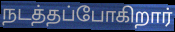
நடத்தப்போகிறார்